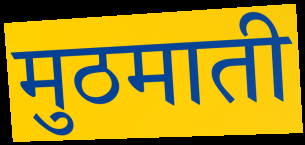
मुठमाती